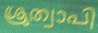
ശ്രുത്വാപി